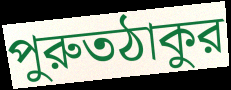
পুরুতঠাকুর